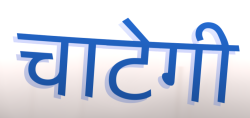
चाटेगी